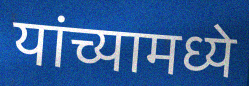
यांच्यामध्ये